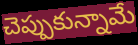
చెప్పుకున్నామే